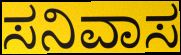
ಸನಿವಾಸ